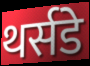
थर्सडे